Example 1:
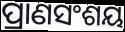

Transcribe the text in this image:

ପ୍ରାଣସଂଶୟ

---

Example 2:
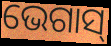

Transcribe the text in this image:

ଭେଗାସ୍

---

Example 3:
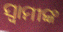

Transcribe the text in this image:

ସ୍ୱାମୀଙ୍କ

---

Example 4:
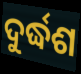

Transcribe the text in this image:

ଦୁର୍ଦ୍ଧଶ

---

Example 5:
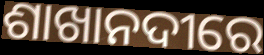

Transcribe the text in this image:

ଶାଖାନଦୀରେ